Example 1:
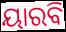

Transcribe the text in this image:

ୟାରବି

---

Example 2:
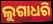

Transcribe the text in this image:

ଲୁଗାଧରି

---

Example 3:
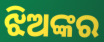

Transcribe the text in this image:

ଝିଅଙ୍କର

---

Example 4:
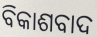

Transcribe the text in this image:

ବିକାଶବାଦ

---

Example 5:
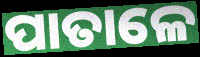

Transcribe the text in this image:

ପାତାଳେ